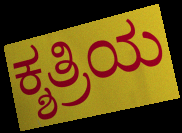
ಕ್ಶತ್ರಿಯ